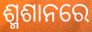
ଶ୍ମଶାନରେ